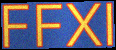
FFXI